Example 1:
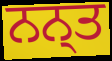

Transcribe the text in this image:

ਨਨ੍ਤ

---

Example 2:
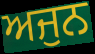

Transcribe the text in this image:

ਅਜੁਨ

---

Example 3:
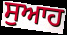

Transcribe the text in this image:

ਸੁਆਹ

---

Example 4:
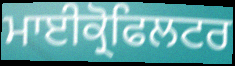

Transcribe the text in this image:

ਮਾਈਕ੍ਰੋਫਿਲਟਰ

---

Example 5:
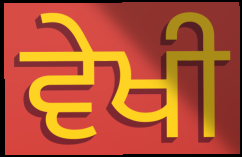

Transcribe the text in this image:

ਵੇਖੀ